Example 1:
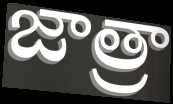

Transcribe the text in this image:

జాత్రా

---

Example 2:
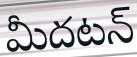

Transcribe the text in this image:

మీదటన్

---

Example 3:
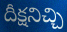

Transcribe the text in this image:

దీక్షనిచ్చి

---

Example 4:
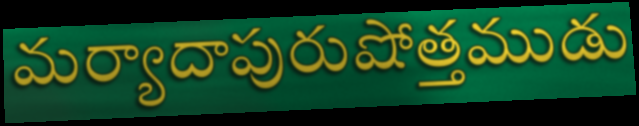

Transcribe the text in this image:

మర్యాదాపురుషోత్తముడు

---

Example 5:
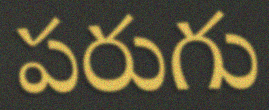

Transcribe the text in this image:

పరుగు